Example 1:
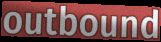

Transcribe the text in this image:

outbound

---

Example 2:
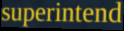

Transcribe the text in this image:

superintend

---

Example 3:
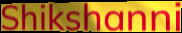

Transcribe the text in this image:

Shikshanni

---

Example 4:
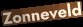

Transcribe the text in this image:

Zonneveld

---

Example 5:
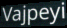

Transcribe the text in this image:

Vajpeyi